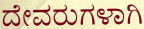
ದೇವರುಗಳಾಗಿ